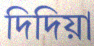
দিদিয়া